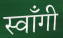
स्वाँगी